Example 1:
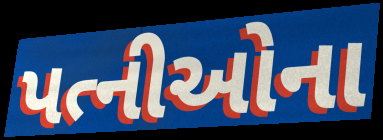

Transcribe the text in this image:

પત્નીઓના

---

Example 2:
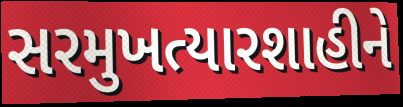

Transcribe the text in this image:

સરમુખત્યારશાહીને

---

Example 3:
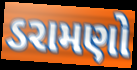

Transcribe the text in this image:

ડરામણો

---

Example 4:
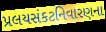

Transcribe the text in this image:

પ્રલયસંકટનિવારણના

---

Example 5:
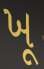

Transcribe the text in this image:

ખૂ